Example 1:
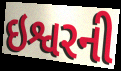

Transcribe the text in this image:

ઇશ્વરની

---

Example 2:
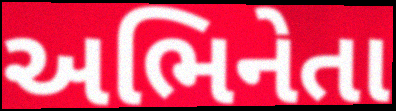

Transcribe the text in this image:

અભિનેતા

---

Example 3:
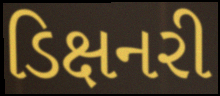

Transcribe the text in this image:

ડિક્ષનરી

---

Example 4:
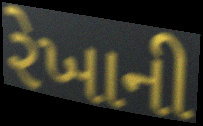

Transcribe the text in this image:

રેખાની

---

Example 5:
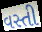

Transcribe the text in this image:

વસ્તી